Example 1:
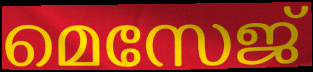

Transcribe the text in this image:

മെസേജ്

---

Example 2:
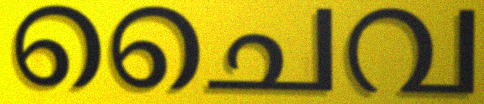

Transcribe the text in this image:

ചൈവ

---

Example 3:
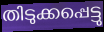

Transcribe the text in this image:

തിടുക്കപ്പെട്ടു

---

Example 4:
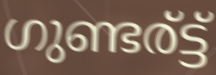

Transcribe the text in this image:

ഗുണ്ടര്ട്ട്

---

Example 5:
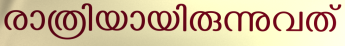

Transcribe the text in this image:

രാത്രിയായിരുന്നുവത്